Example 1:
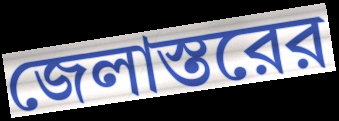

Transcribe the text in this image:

জেলাস্তরের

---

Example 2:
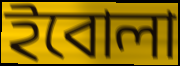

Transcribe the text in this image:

ইবোলা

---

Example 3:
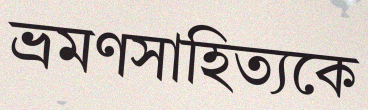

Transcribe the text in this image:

ভ্রমণসাহিত্যকে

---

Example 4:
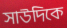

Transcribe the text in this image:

সাউদিকে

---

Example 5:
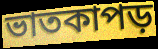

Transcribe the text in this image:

ভাতকাপড়